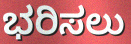
ಭರಿಸಲು